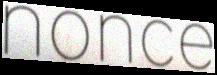
nonce